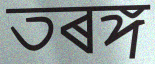
তৰঙ্গ